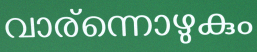
വാര്ന്നൊഴുകും